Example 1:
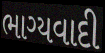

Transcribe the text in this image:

ભાગ્યવાદી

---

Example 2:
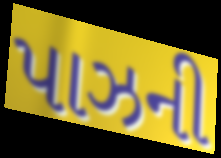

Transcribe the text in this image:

પાઝની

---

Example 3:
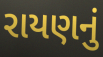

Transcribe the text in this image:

રાયણનું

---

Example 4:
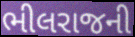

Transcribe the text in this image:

ભીલરાજની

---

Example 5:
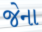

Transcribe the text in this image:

જેના